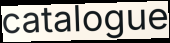
catalogue